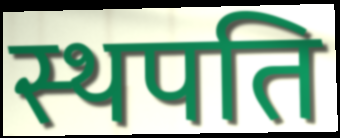
स्थपति